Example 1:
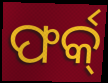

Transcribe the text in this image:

ଫର୍କ୍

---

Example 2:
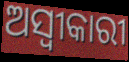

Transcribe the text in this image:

ଅସ୍ଵୀକାରୀ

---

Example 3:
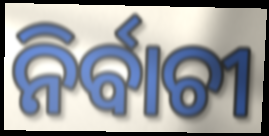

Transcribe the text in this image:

ନିର୍ବାଚୀ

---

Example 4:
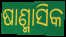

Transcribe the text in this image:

ଷାଣ୍ମାସିକ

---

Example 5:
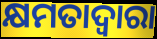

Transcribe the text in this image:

କ୍ଷମତାଦ୍ୱାରା